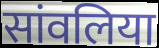
सांवलिया